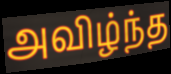
அவிழ்ந்த